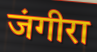
जंगीरा